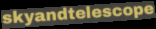
skyandtelescope